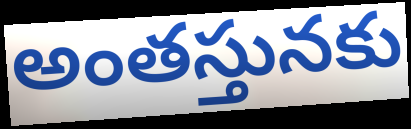
అంతస్తునకు